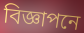
বিজ্ঞাপনে